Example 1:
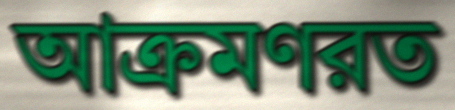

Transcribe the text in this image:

আক্রমণরত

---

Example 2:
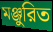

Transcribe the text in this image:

মঞ্জুরিত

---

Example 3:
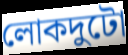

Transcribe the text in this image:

লোকদুটো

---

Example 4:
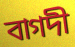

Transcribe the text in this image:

বাগদী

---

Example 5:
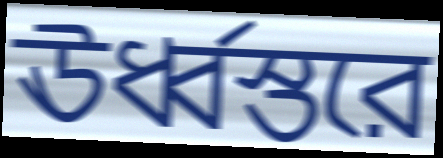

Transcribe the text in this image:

ঊর্ধ্বস্তরে